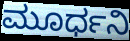
ಮೂರ್ಧನಿ